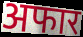
अफार